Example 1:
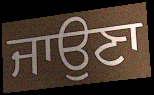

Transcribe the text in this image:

ਜਾਉਣਾ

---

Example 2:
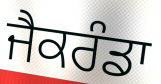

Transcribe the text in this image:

ਜੈਕਰੰਡਾ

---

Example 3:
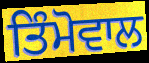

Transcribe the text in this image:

ਤਿੰਮੋਵਾਲ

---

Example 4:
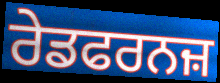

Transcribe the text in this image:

ਰੇਡਫਰਨਜ਼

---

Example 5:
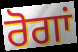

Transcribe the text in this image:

ਰੋਗਾਂ